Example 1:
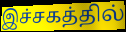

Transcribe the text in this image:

இச்சகத்தில்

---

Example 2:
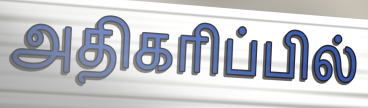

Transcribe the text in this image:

அதிகரிப்பில்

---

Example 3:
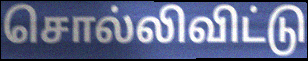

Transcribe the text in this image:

சொல்லிவிட்டு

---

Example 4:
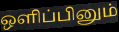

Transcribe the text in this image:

ஒளிப்பினும்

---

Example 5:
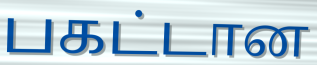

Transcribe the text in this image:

பகட்டான